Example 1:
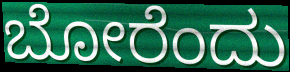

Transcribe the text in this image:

ಬೋರೆಂದು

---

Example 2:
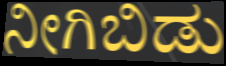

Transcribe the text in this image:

ನೀಗಿಬಿಡು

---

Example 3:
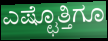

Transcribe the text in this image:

ಎಷ್ಟೊತ್ತಿಗೂ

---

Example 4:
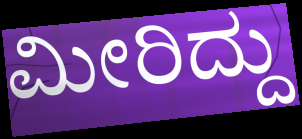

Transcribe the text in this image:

ಮೀರಿದ್ದು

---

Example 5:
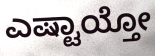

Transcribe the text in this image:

ಎಷ್ಟಾಯ್ತೋ